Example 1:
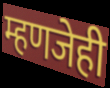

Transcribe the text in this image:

म्हणजेही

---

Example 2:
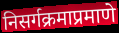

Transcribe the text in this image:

निसर्गक्रमाप्रमाणे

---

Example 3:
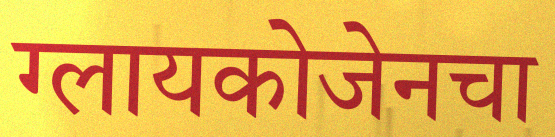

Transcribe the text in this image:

ग्लायकोजेनचा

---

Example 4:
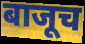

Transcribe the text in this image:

बाजूच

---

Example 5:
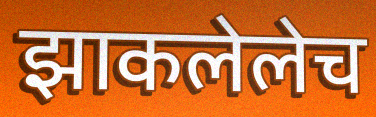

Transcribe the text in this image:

झाकलेलेच